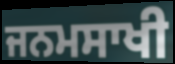
ਜਨਮਸਾਖੀ